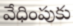
వేధింపుకు